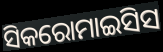
ସିକରୋମାଇସିସ